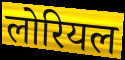
लोरियल